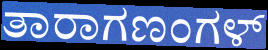
ತಾರಾಗಣಂಗಳ್